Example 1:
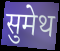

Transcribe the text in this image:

सुमेथ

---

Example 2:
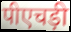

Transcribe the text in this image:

पीएचड़ी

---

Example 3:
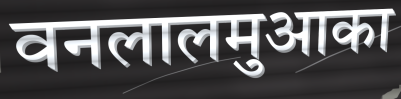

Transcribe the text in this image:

वनलालमुआका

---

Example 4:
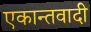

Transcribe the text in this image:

एकान्तवादी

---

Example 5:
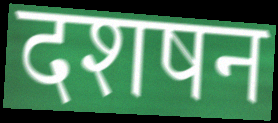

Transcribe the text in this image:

दशषन